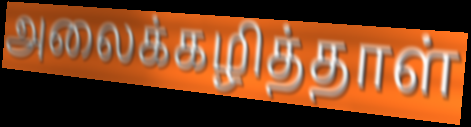
அலைக்கழித்தாள்